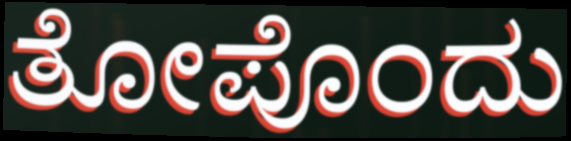
ತೋಪೊಂದು